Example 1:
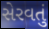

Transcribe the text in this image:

સેરવતું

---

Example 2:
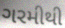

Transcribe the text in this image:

ગરમીથી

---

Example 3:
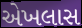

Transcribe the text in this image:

એખલાસ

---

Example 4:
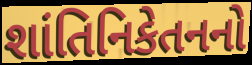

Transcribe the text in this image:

શાંતિનિકેતનનો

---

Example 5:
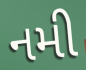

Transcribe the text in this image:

નમી